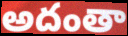
అదంతా